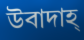
উবাদাহ্